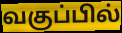
வகுப்பில்